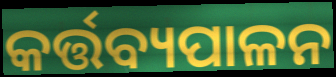
କର୍ତ୍ତବ୍ୟପାଳନ